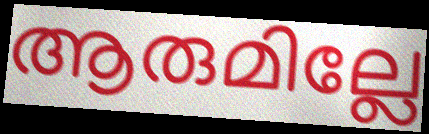
ആരുമില്ലേ